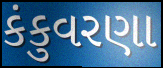
કંકુવરણા